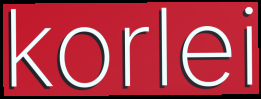
korlei